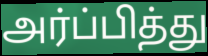
அர்ப்பித்து